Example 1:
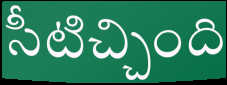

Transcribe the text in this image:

సీటిచ్చింది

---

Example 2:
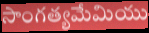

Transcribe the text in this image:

సాంగత్యమేమియు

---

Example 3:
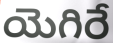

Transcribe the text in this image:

యెగిరే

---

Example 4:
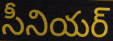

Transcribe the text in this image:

సీనియర్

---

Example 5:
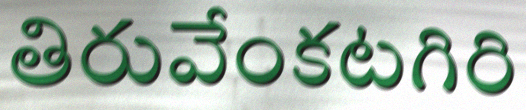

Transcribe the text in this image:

తిరువేంకటగిరి